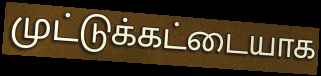
முட்டுக்கட்டையாக